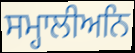
ਸਮ੍ਹਾਲੀਅਨਿ